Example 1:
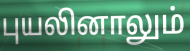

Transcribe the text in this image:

புயலினாலும்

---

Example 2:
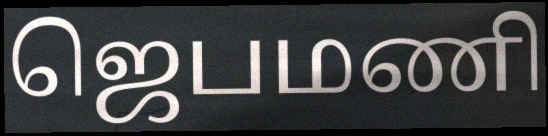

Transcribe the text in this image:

ஜெபமணி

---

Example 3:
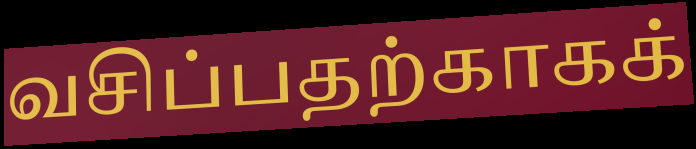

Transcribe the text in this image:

வசிப்பதற்காகக்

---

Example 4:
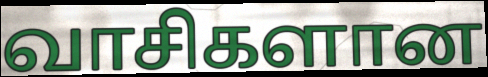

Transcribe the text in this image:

வாசிகளான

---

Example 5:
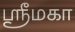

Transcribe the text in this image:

ஸ்ரீமகா